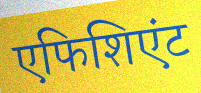
एफिशिएंट